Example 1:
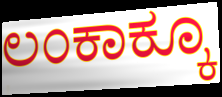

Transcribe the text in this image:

ಲಂಕಾಕ್ಕೂ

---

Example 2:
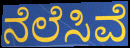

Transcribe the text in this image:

ನೆಲೆಸಿವೆ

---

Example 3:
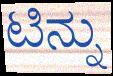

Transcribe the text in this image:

ಟಿನ್ನು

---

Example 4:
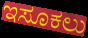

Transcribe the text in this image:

ಇಸೂಕಲು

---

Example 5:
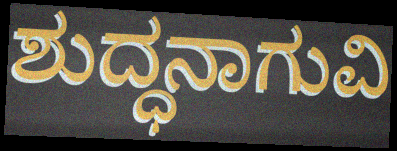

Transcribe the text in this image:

ಶುದ್ಧನಾಗುವಿ